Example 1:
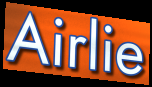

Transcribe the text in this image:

Airlie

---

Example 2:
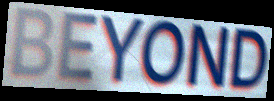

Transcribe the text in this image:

BEYOND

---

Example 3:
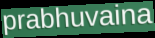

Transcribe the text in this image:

prabhuvaina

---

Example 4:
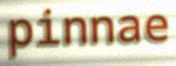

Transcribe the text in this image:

pinnae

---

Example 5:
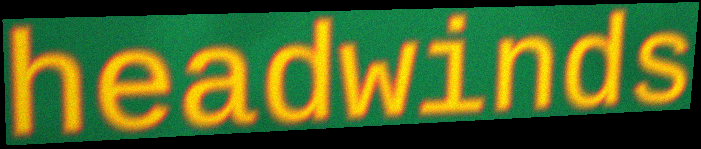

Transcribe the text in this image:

headwinds